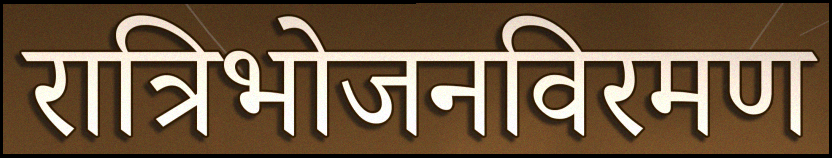
रात्रिभोजनविरमण